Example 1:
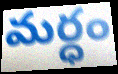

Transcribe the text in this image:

మర్ధం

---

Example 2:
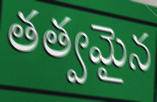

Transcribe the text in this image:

తత్వమైన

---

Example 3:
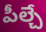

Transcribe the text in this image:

పీల్చే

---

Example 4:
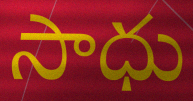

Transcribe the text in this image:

సాధు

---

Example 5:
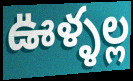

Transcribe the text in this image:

ఊళ్ళల్ల